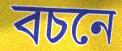
বচনে